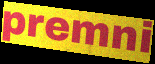
premni